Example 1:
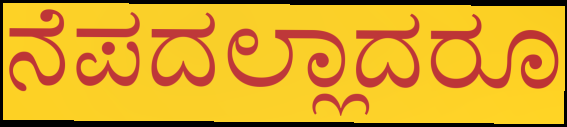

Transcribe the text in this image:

ನೆಪದಲ್ಲಾದರೂ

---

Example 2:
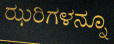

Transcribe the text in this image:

ಝರಿಗಳನ್ನೂ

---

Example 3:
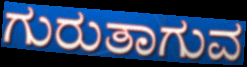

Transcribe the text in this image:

ಗುರುತಾಗುವ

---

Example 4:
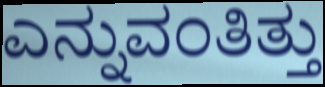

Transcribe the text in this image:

ಎನ್ನುವಂತಿತ್ತು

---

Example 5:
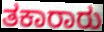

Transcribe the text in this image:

ತಕಾರಾರು